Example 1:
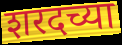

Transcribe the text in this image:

शरदच्या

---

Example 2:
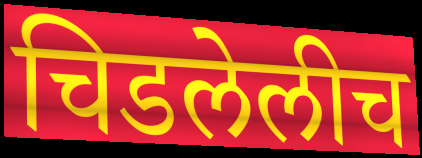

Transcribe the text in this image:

चिडलेलीच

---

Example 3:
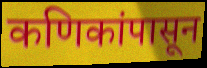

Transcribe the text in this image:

कणिकांपासून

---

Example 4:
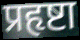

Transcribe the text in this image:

प्रहृष्टा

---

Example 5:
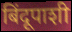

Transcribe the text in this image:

बिंदूपाशी